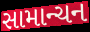
સામાન્ચન